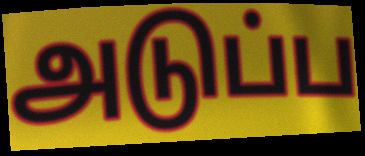
அடுப்ப